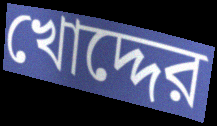
খোদ্দের